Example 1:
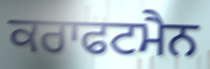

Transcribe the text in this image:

ਕਰਾਫਟਮੈਨ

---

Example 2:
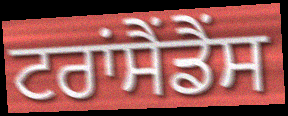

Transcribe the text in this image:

ਟਰਾਂਸੈਂਡੈਂਸ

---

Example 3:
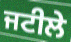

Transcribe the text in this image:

ਜਟੀਲੇ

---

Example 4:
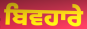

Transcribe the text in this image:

ਬਿਵਹਾਰੇ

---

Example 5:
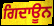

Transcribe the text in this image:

ਗਿਦਾਊਨ